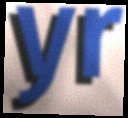
yr